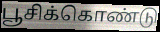
பூசிக்கொண்டு